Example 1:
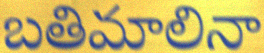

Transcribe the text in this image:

బతిమాలినా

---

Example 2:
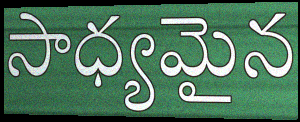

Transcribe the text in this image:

సాధ్యమైన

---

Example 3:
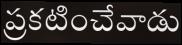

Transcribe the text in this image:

ప్రకటించేవాడు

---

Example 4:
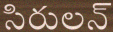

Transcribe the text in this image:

సిరులన్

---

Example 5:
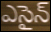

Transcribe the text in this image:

ఎసైన్